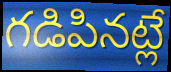
గడిపినట్లే